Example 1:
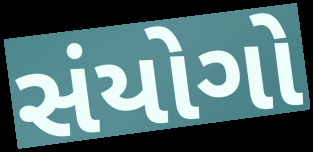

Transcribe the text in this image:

સંયોગો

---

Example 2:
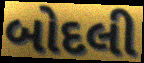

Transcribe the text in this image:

બોદલી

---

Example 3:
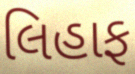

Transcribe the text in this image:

લિહાફ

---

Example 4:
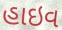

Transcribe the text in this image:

હાઇવ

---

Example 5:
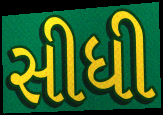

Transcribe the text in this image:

સીધી